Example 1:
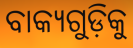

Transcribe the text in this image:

ବାକ୍ୟଗୁଡ଼ିକୁ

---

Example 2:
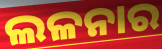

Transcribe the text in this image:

ଲଳନାର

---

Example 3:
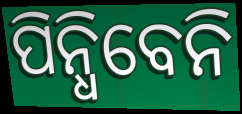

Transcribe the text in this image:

ପିନ୍ଧିବେନି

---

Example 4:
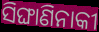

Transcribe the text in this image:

ସିଙ୍ଘାଣିନାକୀ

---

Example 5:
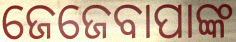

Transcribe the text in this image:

ଜେଜେବାପାଙ୍କ